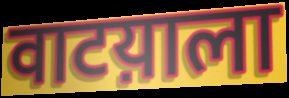
वाटय़ाला